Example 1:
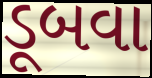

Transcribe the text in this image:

ડૂબવા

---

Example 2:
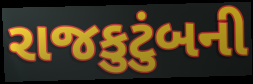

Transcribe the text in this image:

રાજકુટુંબની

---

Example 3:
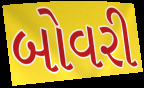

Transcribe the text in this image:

બોવરી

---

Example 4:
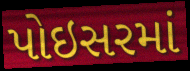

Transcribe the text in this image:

પોઇસરમાં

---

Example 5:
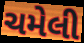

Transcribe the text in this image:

ચમેલી